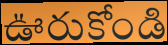
ఊరుకోండి